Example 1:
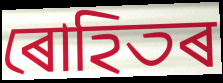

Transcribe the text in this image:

ৰোহিতৰ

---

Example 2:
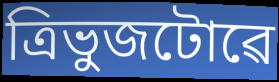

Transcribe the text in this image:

ত্ৰিভুজটোৱে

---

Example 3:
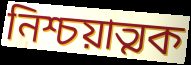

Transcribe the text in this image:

নিশ্চয়াত্মক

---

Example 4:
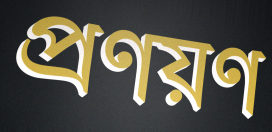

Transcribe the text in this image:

প্ৰণয়ণ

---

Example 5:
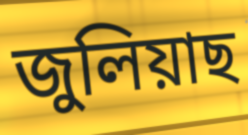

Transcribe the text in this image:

জুলিয়াছ